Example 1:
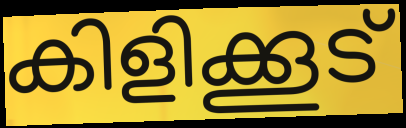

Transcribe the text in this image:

കിളിക്കൂട്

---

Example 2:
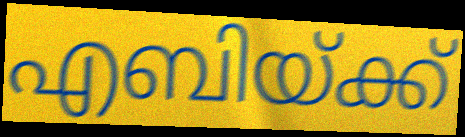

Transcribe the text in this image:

എബിയ്ക്ക്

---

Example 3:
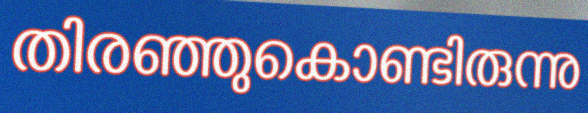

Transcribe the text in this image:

തിരഞ്ഞുകൊണ്ടിരുന്നു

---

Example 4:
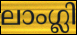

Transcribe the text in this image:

ലാംഗ്ലി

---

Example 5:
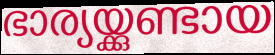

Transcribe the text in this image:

ഭാര്യയ്ക്കുണ്ടായ